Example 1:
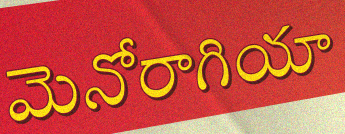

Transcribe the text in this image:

మెనోరాగియా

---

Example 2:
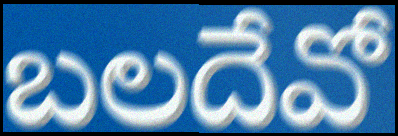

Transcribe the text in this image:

బలదేవో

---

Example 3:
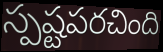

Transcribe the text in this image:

స్పష్టపరచింది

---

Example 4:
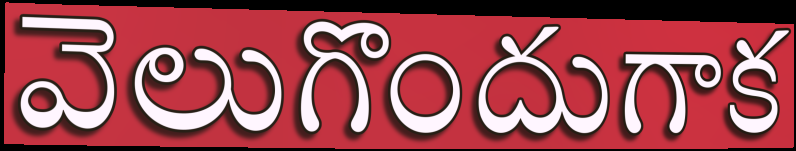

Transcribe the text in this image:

వెలుగొందుగాక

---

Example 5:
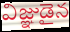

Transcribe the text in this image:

విజ్ఞుడైన